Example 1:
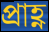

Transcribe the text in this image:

প্ৰাহ্ণ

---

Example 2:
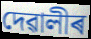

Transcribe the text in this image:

দেৱালীৰ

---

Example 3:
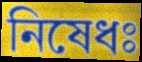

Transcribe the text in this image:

নিষেধঃ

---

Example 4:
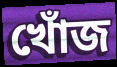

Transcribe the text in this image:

খোঁজ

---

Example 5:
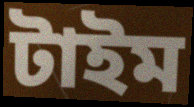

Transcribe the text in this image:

টাইম